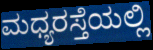
ಮಧ್ಯರಸ್ತೆಯಲ್ಲಿ